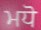
ਮਧੋ